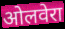
ओलवेरा